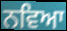
ਨਵਿਆ